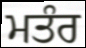
ਮਤੰਰ